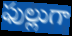
ఫుల్లుగా